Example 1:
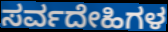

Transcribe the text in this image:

ಸರ್ವದೇಹಿಗಳ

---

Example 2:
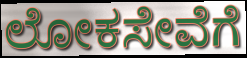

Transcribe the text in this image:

ಲೋಕಸೇವೆಗೆ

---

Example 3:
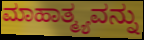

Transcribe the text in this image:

ಮಾಹಾತ್ಮ್ಯವನ್ನು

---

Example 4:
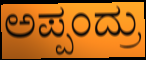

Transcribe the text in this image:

ಅಪ್ಪಂದ್ರು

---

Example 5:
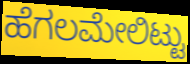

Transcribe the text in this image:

ಹೆಗಲಮೇಲಿಟ್ಟು